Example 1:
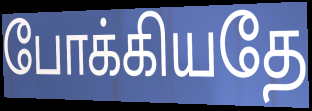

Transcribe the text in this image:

போக்கியதே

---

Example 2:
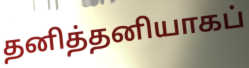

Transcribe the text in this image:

தனித்தனியாகப்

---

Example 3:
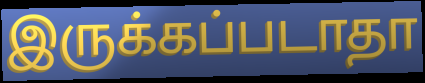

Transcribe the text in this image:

இருக்கப்படாதா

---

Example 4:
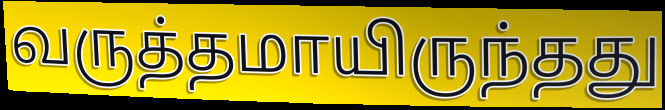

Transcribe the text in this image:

வருத்தமாயிருந்தது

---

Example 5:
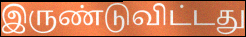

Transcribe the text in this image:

இருண்டுவிட்டது